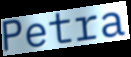
Petra